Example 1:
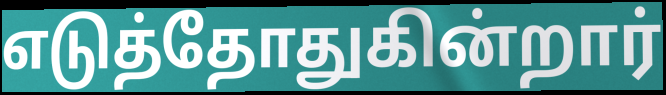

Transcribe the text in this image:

எடுத்தோதுகின்றார்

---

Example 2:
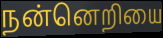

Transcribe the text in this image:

நன்னெறியை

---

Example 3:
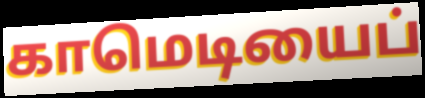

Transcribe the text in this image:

காமெடியைப்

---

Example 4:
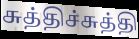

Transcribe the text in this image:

சுத்திச்சுத்தி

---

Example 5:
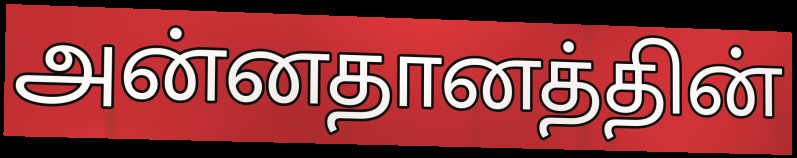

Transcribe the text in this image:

அன்னதானத்தின்